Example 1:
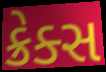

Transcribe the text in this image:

ક્રેક્સ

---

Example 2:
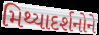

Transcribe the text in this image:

મિથ્યાદર્શનોને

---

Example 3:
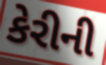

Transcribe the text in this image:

કેરીની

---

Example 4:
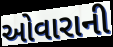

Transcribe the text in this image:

ઓવારાની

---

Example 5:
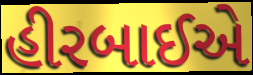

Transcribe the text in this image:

હીરબાઈએ